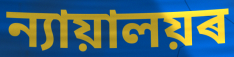
ন্যায়ালয়ৰ